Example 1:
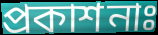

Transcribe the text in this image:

প্রকাশনাঃ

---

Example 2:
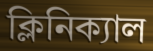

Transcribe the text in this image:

ক্লিনিক্যাল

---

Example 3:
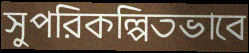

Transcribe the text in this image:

সুপরিকল্পিতভাবে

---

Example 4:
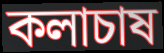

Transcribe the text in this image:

কলাচাষ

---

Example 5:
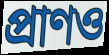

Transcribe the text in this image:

প্রাণও